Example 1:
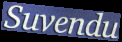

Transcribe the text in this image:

Suvendu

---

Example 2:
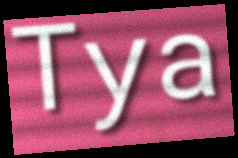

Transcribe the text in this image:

Tya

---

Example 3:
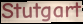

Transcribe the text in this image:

Stutgart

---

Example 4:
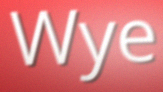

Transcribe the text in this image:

Wye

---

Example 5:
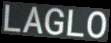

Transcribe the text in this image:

LAGLO